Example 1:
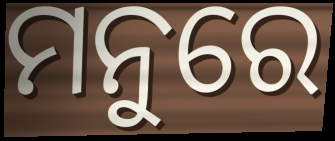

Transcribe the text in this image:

ମନୁରେ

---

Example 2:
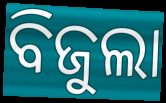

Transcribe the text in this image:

ବିଜୁଲା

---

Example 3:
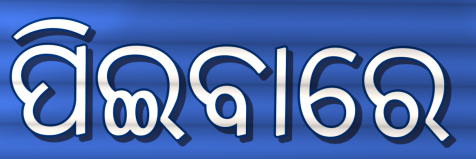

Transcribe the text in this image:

ପିଇବାରେ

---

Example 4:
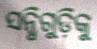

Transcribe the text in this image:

ସନ୍ଧିଗୁଡ଼ିକୁ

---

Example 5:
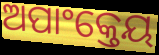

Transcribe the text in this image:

ଅପାଂକ୍ତେୟ